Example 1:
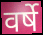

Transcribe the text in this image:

वर्षे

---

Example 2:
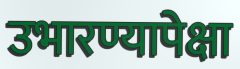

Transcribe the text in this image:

उभारण्यापेक्षा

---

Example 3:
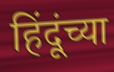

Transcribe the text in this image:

हिंदूंच्या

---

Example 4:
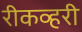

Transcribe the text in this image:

रीकव्हरी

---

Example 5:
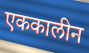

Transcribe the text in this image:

एककालीन